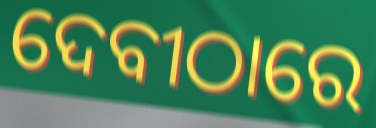
ଦେବୀଠାରେ